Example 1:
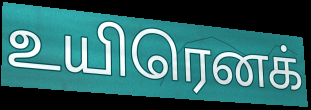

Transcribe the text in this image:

உயிரெனக்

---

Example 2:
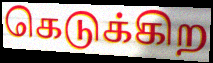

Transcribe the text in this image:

கெடுக்கிற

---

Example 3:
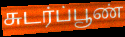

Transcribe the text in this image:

சுடர்ப்பூண்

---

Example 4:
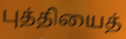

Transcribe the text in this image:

புத்தியைத்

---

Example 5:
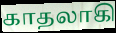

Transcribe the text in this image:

காதலாகி